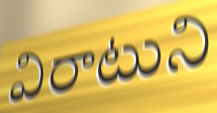
విరాటుని